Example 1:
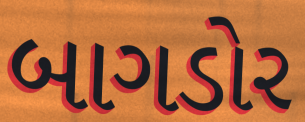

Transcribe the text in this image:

બાગડોર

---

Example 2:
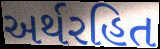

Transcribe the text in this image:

અર્થરહિત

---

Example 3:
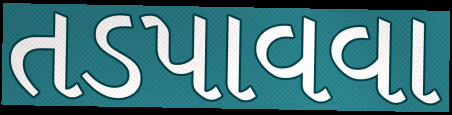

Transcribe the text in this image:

તડપાવવા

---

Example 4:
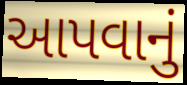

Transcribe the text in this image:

આપવાનું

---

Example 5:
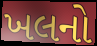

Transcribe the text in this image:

ખલનો